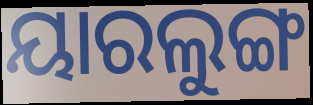
ୟାରଲୁଙ୍ଗ